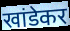
खांडेकर